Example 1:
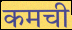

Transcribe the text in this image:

कमची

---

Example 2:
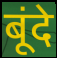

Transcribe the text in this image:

बूंदे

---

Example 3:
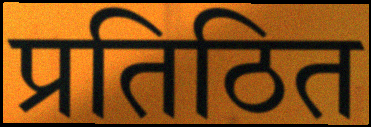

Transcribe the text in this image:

प्रतिठित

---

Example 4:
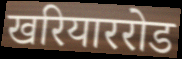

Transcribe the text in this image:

खरियाररोड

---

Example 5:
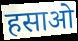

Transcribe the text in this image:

हसाओ